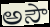
అసౌ